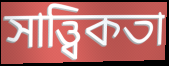
সাত্ত্বিকতা